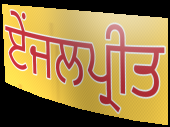
ਏਂਜਲਪ੍ਰੀਤ